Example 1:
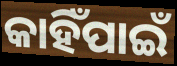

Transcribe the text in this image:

କାହିଁପାଇଁ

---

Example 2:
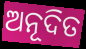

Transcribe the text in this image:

ଅନୂଦିତ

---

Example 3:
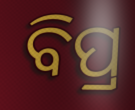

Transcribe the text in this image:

ବିପ୍ର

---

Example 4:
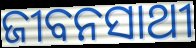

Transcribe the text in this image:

ଜୀବନସାଥୀ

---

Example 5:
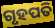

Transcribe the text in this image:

ଗୃହପତି